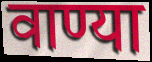
वाण्या